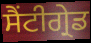
ਸੈਂਟੀਗ੍ਰੇਡ